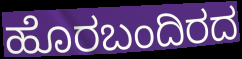
ಹೊರಬಂದಿರದ